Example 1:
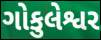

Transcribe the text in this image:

ગોકુલેશ્વર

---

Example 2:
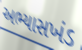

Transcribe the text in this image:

અભ્યાસખંડ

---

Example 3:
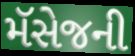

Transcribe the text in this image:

મૅસેજની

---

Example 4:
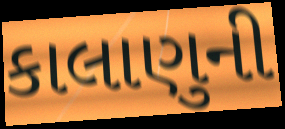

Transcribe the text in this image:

કાલાણુની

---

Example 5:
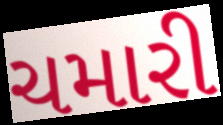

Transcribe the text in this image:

ચમારી